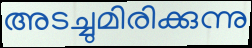
അടച്ചുമിരിക്കുന്നു